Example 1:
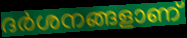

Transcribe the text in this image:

ദർശനങ്ങളാണ്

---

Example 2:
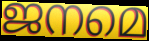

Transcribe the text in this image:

ജനമെ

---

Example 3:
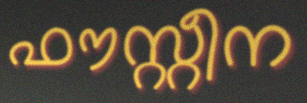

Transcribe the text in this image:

ഫൗസ്റ്റീന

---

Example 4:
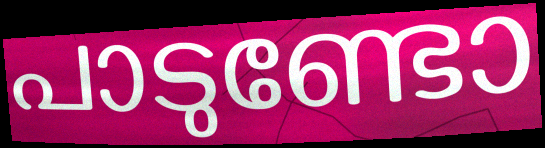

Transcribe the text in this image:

പാടുണ്ടോ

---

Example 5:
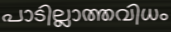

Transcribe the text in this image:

പാടില്ലാത്തവിധം